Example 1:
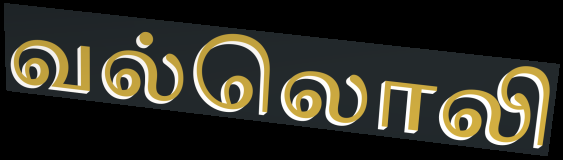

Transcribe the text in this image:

வல்லொலி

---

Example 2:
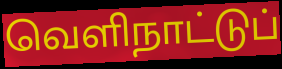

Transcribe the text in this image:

வெளிநாட்டுப்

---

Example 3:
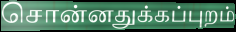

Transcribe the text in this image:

சொன்னதுக்கப்புறம்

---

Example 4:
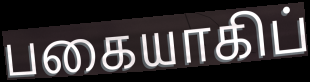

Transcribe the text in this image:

பகையாகிப்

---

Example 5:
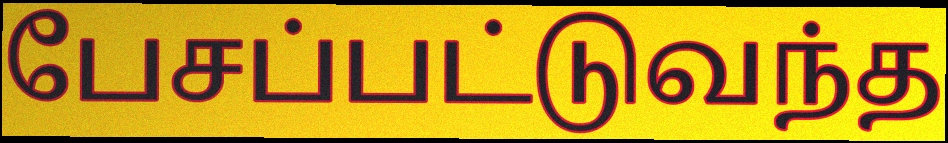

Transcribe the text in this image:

பேசப்பட்டுவந்த